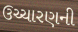
ઉચ્ચારણની